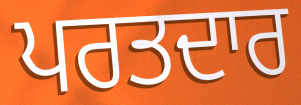
ਪਰਤਦਾਰ